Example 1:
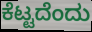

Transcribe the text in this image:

ಕೆಟ್ಟದೆಂದು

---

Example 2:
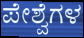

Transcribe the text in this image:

ಪೇಶ್ವೆಗಳ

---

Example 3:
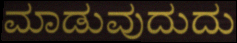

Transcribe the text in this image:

ಮಾಡುವುದುದು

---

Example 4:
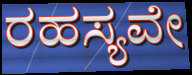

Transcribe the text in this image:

ರಹಸ್ಯವೇ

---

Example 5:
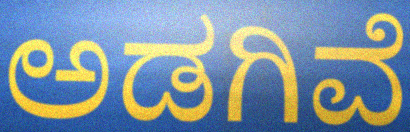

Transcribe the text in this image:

ಅಡಗಿವೆ